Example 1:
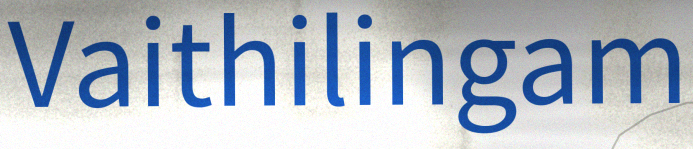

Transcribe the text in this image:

Vaithilingam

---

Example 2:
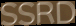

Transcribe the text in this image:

SSRD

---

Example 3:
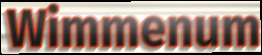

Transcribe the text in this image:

Wimmenum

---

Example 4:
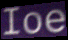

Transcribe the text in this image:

Ioe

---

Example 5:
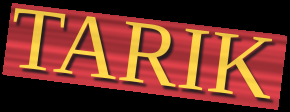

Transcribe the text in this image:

TARIK